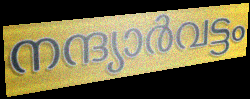
നന്ദ്യാർവട്ടം